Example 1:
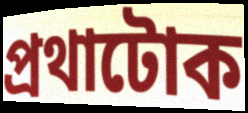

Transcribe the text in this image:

প্ৰথাটোক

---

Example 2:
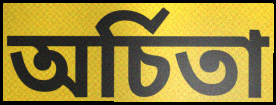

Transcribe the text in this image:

অৰ্চিতা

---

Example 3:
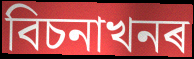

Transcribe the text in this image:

বিচনাখনৰ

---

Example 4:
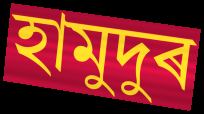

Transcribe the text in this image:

হামুদুৰ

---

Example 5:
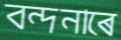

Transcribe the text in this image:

বন্দনাৰে